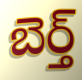
బెర్త్